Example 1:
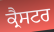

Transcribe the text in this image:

ਕ੍ਰੈਸਟਰ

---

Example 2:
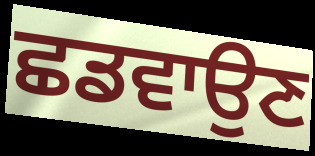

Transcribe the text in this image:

ਛਡਵਾਉਣ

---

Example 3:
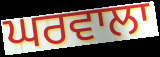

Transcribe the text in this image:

ਘਰਵਾਲਾ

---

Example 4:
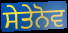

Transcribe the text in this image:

ਸੇਤੇਨੋਵ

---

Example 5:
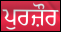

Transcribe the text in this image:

ਪੁਰਜ਼ੌਰ